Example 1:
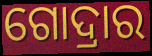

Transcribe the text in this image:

ଗୋଦ୍ରାର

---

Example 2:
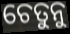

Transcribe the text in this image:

ଚେତୁନୁ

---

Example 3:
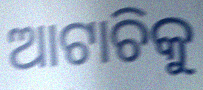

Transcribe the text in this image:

ଆଟାଚିକୁ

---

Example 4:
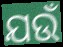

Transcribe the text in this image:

ଯଉଁ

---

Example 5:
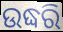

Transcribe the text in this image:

ଉଦ୍ଧରି